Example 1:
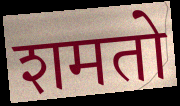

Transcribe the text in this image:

शमतो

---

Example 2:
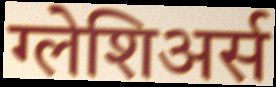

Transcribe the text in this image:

ग्लेशिअर्स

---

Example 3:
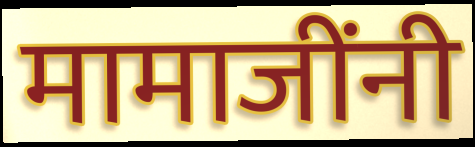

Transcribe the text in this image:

मामाजींनी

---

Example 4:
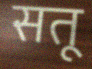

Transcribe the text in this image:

सतू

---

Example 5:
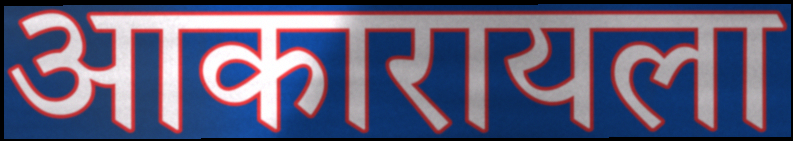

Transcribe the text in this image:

आकारायला